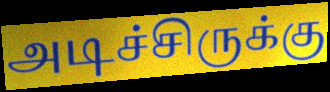
அடிச்சிருக்கு